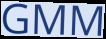
GMM